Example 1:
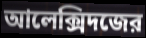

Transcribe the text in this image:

আলেক্সিদজের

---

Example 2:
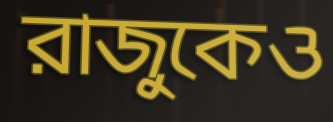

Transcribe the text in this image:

রাজুকেও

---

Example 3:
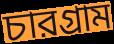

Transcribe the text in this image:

চারগ্রাম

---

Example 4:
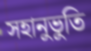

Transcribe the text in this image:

সহানুভুতি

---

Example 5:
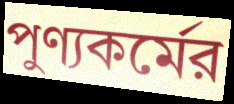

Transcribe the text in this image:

পুণ্যকর্মের